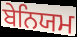
ਬੇਨਿਯਮ